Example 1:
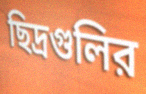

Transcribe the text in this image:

ছিদ্রগুলির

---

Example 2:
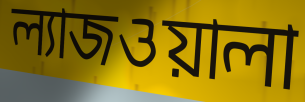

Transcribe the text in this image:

ল্যাজওয়ালা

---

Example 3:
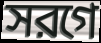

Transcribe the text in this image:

সরগে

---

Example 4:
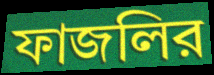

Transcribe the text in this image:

ফাজলির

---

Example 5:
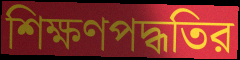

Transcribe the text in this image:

শিক্ষণপদ্ধতির